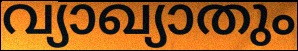
വ്യാഖ്യാതും